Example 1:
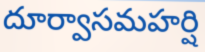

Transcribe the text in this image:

దూర్వాసమహర్షి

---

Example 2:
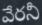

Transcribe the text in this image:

వేరనీ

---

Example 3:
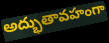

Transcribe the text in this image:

అద్భుతావహంగా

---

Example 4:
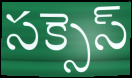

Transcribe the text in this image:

సక్సెస్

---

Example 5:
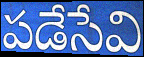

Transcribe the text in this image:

పడేసేవి